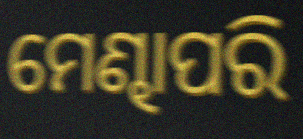
ମେଣ୍ଢାପରି